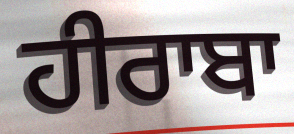
ਹੀਰਾਬਾ